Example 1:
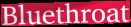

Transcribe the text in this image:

Bluethroat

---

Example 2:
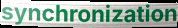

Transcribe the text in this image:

synchronization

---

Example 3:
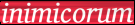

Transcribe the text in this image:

inimicorum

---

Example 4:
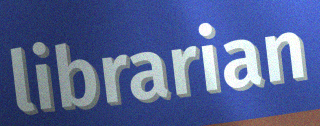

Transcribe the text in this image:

librarian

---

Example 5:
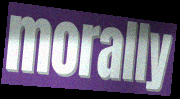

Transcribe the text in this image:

morally